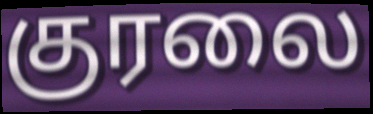
குரலை